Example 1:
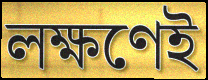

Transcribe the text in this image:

লক্ষণেই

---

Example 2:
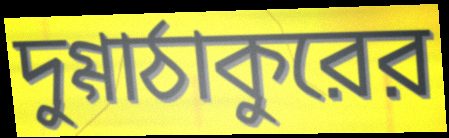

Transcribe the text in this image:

দুগ্গাঠাকুরের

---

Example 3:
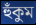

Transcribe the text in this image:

হুঁকুম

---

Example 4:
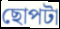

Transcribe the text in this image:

ছোপটা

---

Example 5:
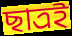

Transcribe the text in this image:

ছাত্রই